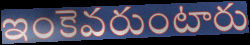
ఇంకెవరుంటారు